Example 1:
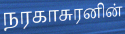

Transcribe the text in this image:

நரகாசுரனின்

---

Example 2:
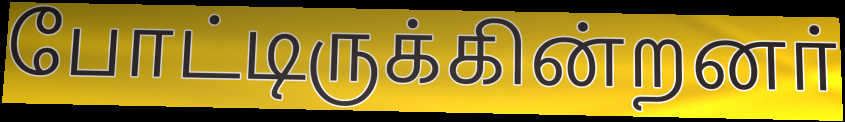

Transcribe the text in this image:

போட்டிருக்கின்றனர்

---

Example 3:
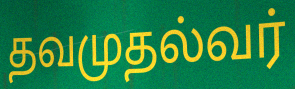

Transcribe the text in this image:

தவமுதல்வர்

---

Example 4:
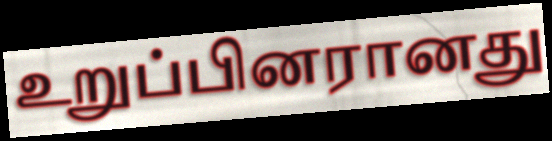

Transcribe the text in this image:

உறுப்பினரானது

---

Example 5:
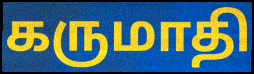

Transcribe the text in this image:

கருமாதி